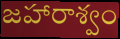
జహారాశ్వం